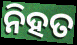
ନିହତ